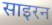
साइरन